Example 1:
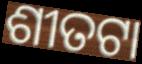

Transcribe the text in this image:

ଶୀତଟା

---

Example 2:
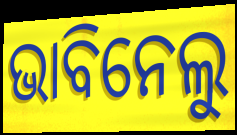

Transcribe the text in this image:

ଭାବିନେଲୁ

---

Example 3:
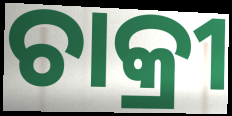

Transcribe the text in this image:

ଚାକ୍ରୀ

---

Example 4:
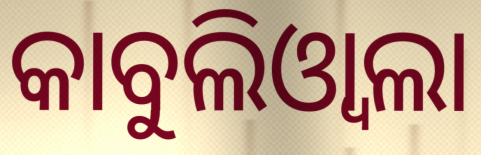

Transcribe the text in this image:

କାବୁଲିଓ୍ୱାଲା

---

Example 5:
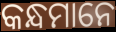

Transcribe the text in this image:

କନ୍ଧମାନେ